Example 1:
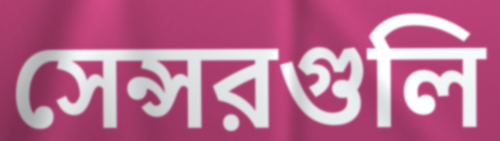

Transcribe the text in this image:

সেন্সরগুলি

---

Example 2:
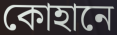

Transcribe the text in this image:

কোহানে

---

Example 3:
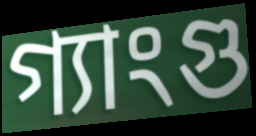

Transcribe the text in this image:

গ্যাংগু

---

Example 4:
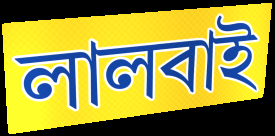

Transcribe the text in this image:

লালবাই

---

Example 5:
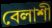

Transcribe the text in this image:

বেলাশী